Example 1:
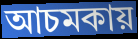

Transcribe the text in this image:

আচমকায়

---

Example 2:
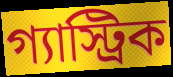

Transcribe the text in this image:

গ্যাস্ট্রিক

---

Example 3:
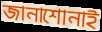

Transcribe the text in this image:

জানাশোনাই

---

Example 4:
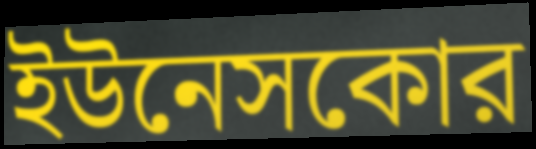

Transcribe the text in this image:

ইউনেসকোর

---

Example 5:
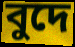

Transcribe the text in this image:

বুদে